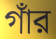
গাঁর